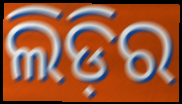
ଲିଡ଼ିର